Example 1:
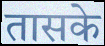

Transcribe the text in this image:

तासके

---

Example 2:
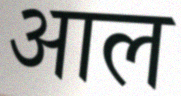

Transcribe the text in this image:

आल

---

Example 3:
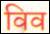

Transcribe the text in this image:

विव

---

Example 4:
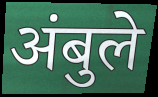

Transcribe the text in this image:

अंबुले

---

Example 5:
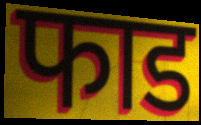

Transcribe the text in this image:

फाड